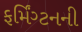
ફર્મિંગ્ટનની